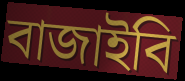
বাজাইবি